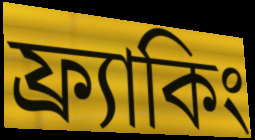
ফ্র্যাকিং